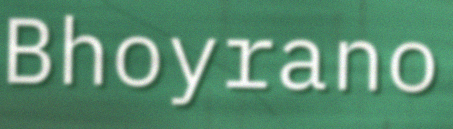
Bhoyrano